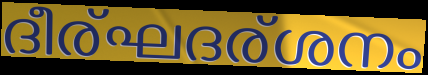
ദീര്ഘദര്ശനം